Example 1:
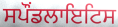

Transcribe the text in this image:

ਸਪੌਂਡਲਾਇਟਿਸ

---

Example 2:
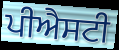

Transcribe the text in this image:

ਪੀਐਸਟੀ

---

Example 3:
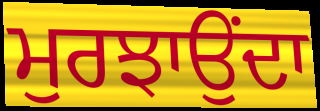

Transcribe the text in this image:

ਮੁਰਝਾਉਂਦਾ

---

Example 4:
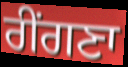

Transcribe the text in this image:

ਰੀਂਗਣਾ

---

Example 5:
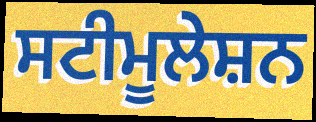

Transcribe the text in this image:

ਸਟੀਮੂਲੇਸ਼ਨ